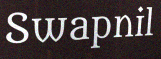
Swapnil